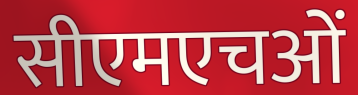
सीएमएचओं